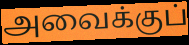
அவைக்குப்